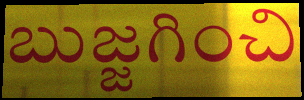
బుజ్జగించి